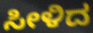
ಸೀಳಿದ